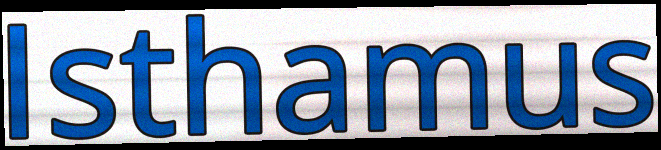
Isthamus